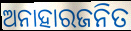
ଅନାହାରଜନିତ